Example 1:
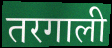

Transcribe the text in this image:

तरगाली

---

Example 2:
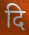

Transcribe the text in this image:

दि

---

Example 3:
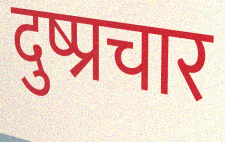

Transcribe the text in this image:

दुष्‍प्रचार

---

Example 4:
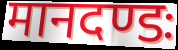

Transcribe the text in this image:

मानदण्डः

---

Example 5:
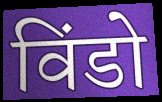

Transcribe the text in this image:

विंडो